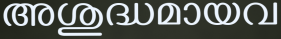
അശുദ്ധമായവ